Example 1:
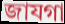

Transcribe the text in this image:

জাযগা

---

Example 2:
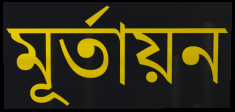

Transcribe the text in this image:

মূর্তায়ন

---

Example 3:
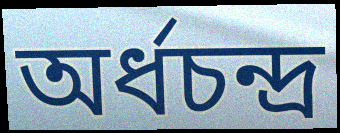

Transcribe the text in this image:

অর্ধচন্দ্র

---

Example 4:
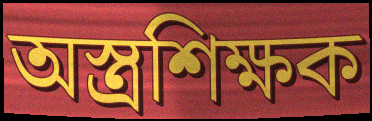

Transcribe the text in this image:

অস্ত্রশিক্ষক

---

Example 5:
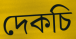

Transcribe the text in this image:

দেকচি